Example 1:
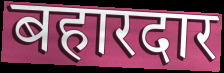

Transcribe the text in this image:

बहारदार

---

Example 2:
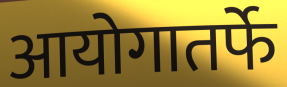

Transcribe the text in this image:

आयोगातर्फे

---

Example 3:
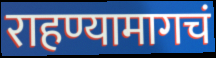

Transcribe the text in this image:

राहण्यामागचं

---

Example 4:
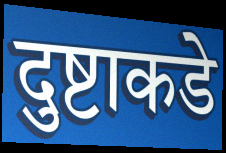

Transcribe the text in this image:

दुष्टाकडे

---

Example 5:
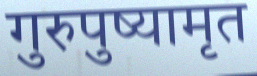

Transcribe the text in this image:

गुरुपुष्यामृत